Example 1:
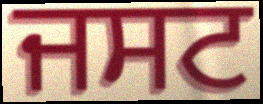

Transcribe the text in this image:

ਜਸਟ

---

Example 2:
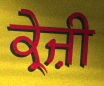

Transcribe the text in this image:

ਕ੍ਰੇਜ਼ੀ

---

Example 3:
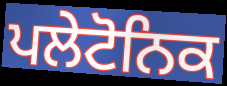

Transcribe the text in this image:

ਪਲੇਟੋਨਿਕ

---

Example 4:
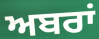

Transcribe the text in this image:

ਅਬਰਾਂ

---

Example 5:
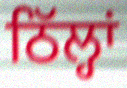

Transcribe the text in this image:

ਠਿੱਲ੍ਹਾਂ